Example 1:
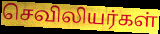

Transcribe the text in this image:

செவிலியர்கள்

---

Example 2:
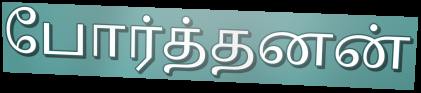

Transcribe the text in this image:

போர்த்தனன்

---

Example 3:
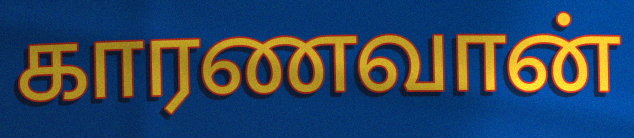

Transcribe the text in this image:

காரணவான்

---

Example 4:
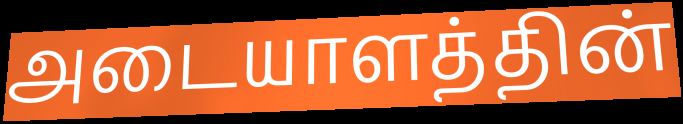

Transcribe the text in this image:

அடையாளத்தின்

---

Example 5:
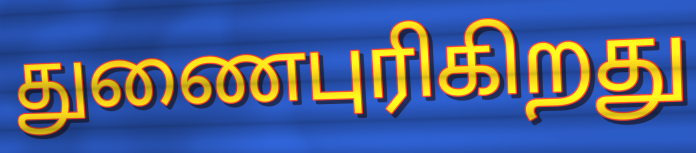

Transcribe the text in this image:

துணைபுரிகிறது